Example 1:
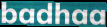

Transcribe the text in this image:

badhaa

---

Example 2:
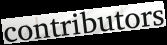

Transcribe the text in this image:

contributors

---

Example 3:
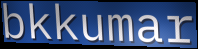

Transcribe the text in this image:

bkkumar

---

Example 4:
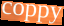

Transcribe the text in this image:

coppy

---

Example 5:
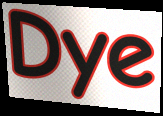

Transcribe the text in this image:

Dye